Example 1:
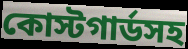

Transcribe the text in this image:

কোস্টগার্ডসহ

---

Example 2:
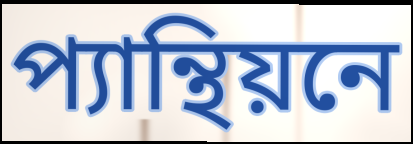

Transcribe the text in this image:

প্যান্থিয়নে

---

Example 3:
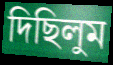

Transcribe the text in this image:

দিছিলুম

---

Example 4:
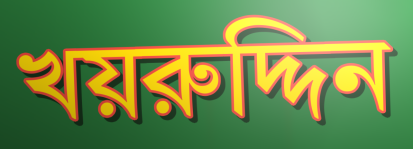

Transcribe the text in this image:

খয়রুদ্দিন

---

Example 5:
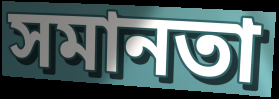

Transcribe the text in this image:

সমানতা